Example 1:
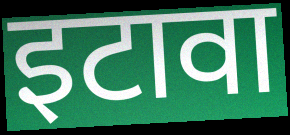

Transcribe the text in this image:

इटावा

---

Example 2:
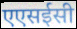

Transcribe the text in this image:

एएसईसी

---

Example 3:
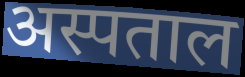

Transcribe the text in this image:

अस्पताल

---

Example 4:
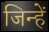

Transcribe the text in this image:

जिन्हें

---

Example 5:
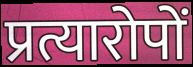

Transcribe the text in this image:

प्रत्यारोपों